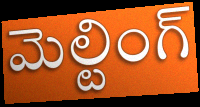
మెల్టింగ్